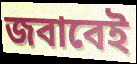
জবাবেই